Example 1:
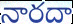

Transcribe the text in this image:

నారదా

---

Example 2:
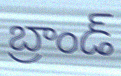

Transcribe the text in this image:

బ్రాండ్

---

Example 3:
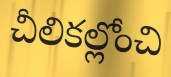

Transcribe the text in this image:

చీలికల్లోంచి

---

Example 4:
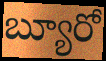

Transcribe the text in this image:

బ్యూరో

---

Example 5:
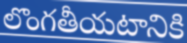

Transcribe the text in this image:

లొంగతీయటానికి